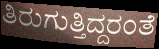
ತಿರುಗುತ್ತಿದ್ದರಂತೆ